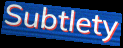
Subtlety